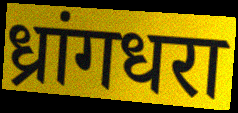
ध्रांगधरा